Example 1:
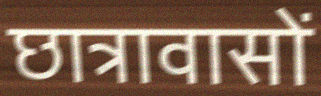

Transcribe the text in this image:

छात्रावासों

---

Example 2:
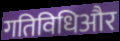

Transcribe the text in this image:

गतिविधिऔर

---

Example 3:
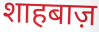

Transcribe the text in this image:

शाहबाज़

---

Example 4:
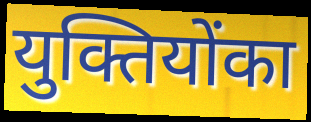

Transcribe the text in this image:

युक्तियोंका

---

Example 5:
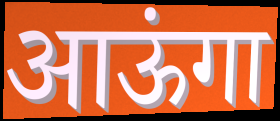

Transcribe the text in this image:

आऊंगा